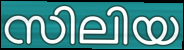
സിലിയ